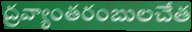
ద్రవ్యాంతరంబులచేత